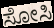
ಸೋಸಿ